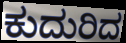
ಕುದುರಿದ